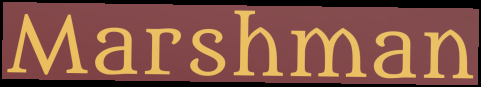
Marshman